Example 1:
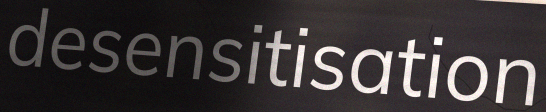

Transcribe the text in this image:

desensitisation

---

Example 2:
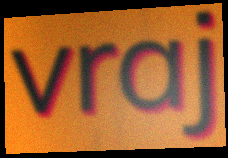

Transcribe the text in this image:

vraj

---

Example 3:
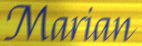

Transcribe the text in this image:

Marian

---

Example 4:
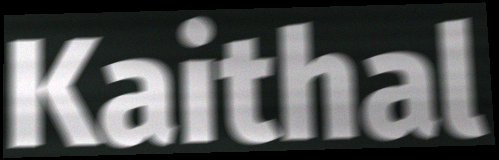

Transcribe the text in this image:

Kaithal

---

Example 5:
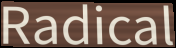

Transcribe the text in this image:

Radical